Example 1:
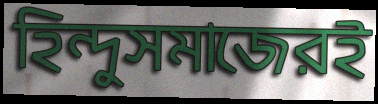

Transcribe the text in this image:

হিন্দুসমাজেরই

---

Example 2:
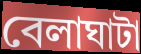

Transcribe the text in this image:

বেলাঘাটা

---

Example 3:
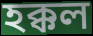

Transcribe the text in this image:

হক্কল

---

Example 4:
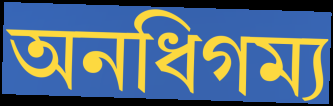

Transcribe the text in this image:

অনধিগম্য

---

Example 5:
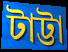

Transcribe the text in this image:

টাট্টা